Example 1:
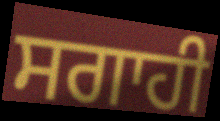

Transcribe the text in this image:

ਸਗਾਹੀ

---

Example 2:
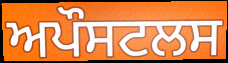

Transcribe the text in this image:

ਅਪੌਸਟਲਸ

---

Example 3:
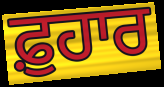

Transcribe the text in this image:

ਫ਼ੁਹਾਰ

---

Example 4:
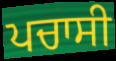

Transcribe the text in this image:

ਪਚਾਸੀ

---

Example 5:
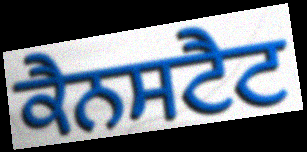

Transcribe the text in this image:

ਕੈਨਸਟੈਟ